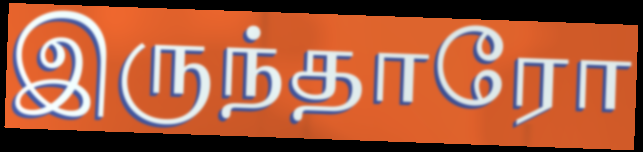
இருந்தாரோ